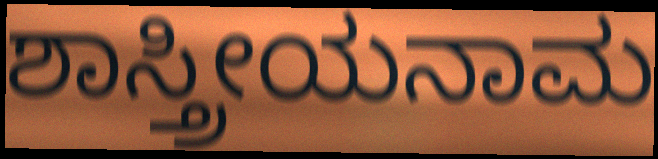
ಶಾಸ್ತ್ರೀಯನಾಮ